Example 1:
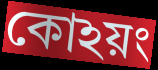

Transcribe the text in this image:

কোঽয়ং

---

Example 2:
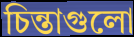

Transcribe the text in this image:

চিন্তাগুলো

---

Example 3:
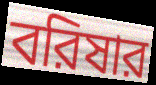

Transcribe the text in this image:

বরিষার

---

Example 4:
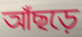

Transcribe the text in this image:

আঁছড়ে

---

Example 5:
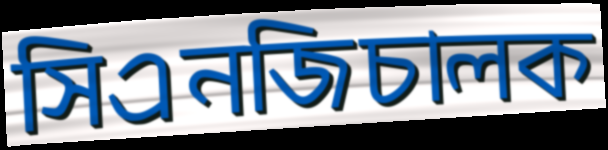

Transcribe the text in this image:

সিএনজিচালক